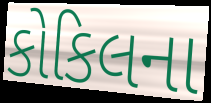
કોકિલના